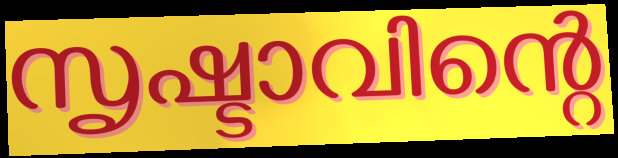
സൃഷ്ടാവിന്റെ